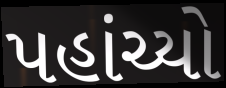
પહાંચ્યો